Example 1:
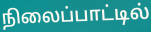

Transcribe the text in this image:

நிலைப்பாட்டில்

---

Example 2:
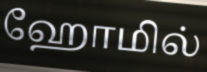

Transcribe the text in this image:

ஹோமில்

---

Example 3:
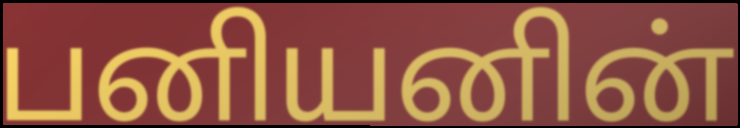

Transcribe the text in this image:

பனியனின்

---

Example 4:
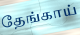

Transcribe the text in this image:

தேங்காய்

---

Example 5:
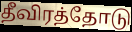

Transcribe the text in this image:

தீவிரத்தோடு